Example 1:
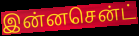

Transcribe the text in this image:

இன்னசென்ட்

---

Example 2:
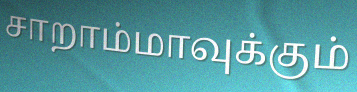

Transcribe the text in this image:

சாறாம்மாவுக்கும்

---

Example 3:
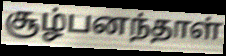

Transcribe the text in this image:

சூழ்பனந்தாள்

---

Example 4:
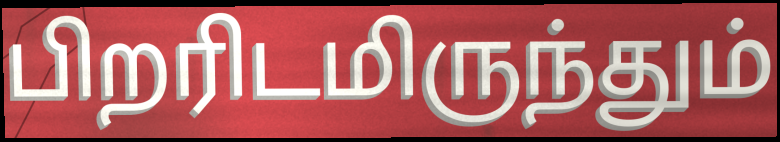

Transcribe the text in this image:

பிறரிடமிருந்தும்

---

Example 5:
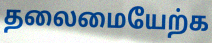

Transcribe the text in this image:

தலைமையேற்க